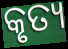
କୃତ୍ଯ